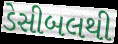
ડેસીબલથી